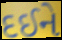
દઈને